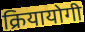
क्रियायोगी